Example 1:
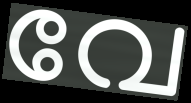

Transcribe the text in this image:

വേ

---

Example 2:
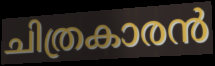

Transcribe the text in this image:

ചിത്രകാരൻ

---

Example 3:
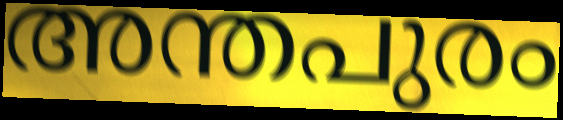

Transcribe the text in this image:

അന്തപുരം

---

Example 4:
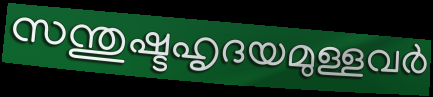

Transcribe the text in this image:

സന്തുഷ്ടഹൃദയമുള്ളവർ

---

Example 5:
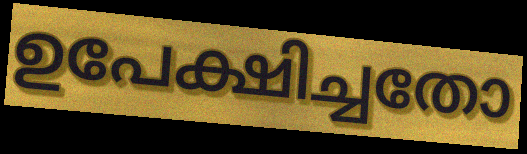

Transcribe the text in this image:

ഉപേക്ഷിച്ചതോ